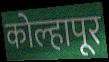
कोल्हापूर